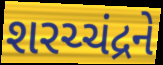
શરચ્ચંદ્રને